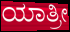
ಯಾತ್ರೀ